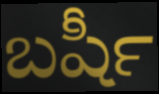
బషీర్‍